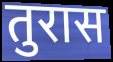
तुरास